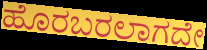
ಹೊರಬರಲಾಗದೇ